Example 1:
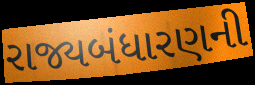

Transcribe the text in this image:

રાજ્યબંધારણની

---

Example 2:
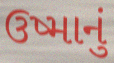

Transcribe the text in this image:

ઉષ્માનું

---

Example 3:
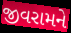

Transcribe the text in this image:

જીવરામને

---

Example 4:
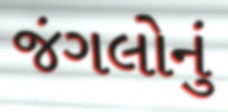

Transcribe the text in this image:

જંગલોનું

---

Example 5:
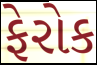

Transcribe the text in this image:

ફેરોક